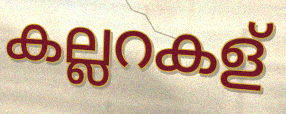
കല്ലറകള്